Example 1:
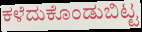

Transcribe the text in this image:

ಕಳೆದುಕೊಂಡುಬಿಟ್ಟ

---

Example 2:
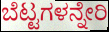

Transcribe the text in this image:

ಬೆಟ್ಟಗಳನ್ನೇರಿ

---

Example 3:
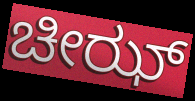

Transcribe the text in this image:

ಚೀಝ್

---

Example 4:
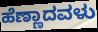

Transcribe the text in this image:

ಹೆಣ್ಣಾದವಳು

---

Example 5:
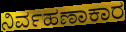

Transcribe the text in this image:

ನಿರ್ವಹಣಾಕಾರ